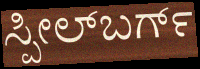
ಸ್ಪೀಲ್‌ಬರ್ಗ್